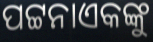
ପଟ୍ଟନାଏକଙ୍କୁ